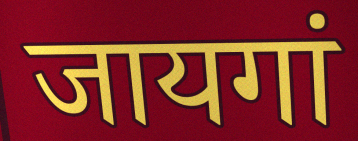
जायगां